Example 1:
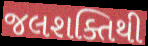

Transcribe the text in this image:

જલશક્તિથી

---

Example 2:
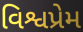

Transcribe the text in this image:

વિશ્વપ્રેમ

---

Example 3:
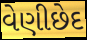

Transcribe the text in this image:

વેણીછેદ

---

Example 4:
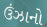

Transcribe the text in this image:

ઉંઝાનો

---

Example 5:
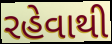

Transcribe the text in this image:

રહેવાથી